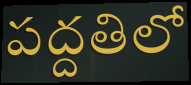
పద్దతిలో